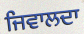
ਜਿਵਾਲਦਾ